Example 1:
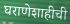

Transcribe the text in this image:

घराणेशाहीची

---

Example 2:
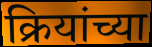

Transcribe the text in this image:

क्रियांच्या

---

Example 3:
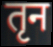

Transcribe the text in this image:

तृन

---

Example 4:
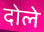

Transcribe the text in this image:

दोले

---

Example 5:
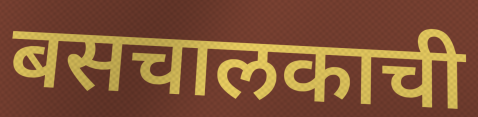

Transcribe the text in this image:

बसचालकाची